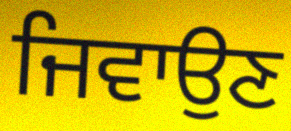
ਜਿਵਾਉਣ